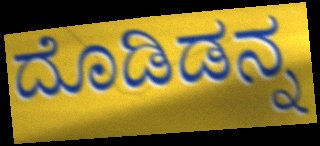
ದೊಡಿಡನ್ನ